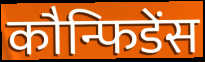
कौन्फिडेंस